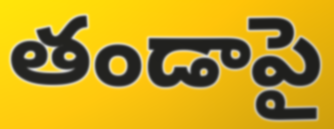
తండాపై